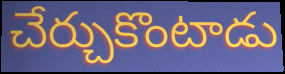
చేర్చుకొంటాడు